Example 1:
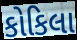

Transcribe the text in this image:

કોકિલા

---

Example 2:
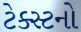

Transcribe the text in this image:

ટેક્સ્ટનો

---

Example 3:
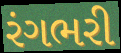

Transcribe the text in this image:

રંગભરી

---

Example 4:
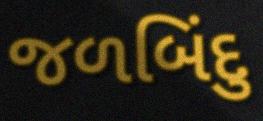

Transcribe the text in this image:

જળબિંદુ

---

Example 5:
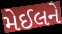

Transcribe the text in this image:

મેઈલને